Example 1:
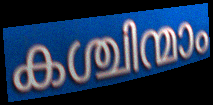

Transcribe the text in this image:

കശ്ചിന്മാം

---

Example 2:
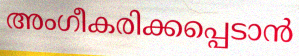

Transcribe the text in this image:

അംഗീകരിക്കപ്പെടാൻ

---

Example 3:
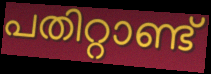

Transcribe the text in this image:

പതിറ്റാണ്ട്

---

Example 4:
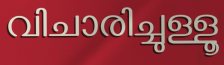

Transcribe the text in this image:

വിചാരിച്ചുള്ളൂ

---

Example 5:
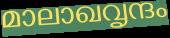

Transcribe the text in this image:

മാലാഖവൃന്ദം